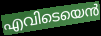
എവിടെയെൻ